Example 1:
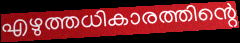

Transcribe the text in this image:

എഴുത്തധികാരത്തിന്റെ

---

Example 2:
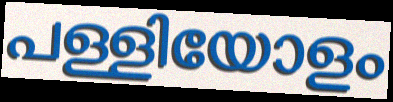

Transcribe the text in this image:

പള്ളിയോളം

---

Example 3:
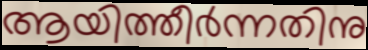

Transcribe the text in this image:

ആയിത്തീർന്നതിനു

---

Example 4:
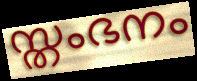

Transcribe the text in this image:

സ്തംഭനം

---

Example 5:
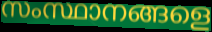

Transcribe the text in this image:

സംസ്ഥാനങ്ങളെ